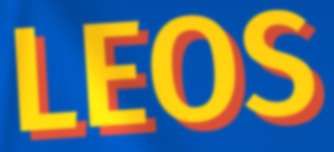
LEOS